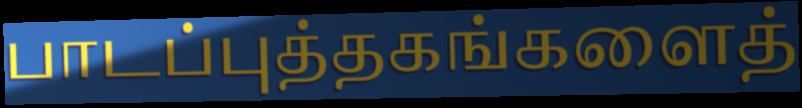
பாடப்புத்தகங்களைத்